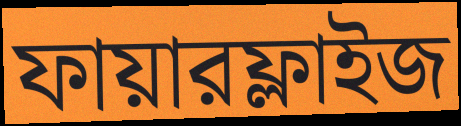
ফায়ারফ্লাইজ